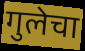
गुलेचा